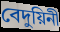
বেদুয়িনী